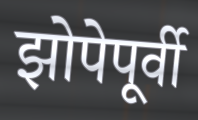
झोपेपूर्वी